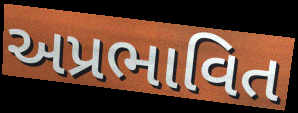
અપ્રભાવિત